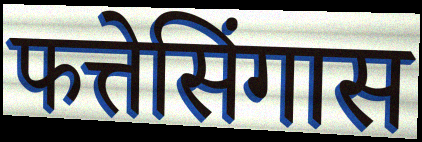
फत्तेसिंगास